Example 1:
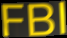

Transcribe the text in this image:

FBI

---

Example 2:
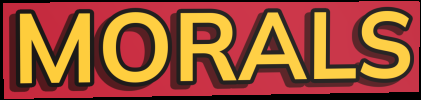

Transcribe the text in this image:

MORALS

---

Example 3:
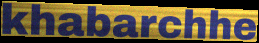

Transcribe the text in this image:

khabarchhe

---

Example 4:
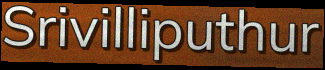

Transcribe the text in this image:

Srivilliputhur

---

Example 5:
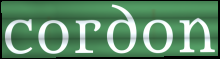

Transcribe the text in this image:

cordon